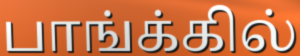
பாங்க்கில்